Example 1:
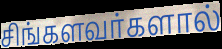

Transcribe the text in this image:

சிங்களவர்களால்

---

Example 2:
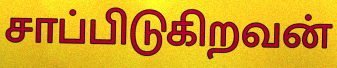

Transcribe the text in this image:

சாப்பிடுகிறவன்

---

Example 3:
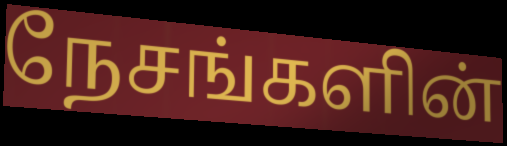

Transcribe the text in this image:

நேசங்களின்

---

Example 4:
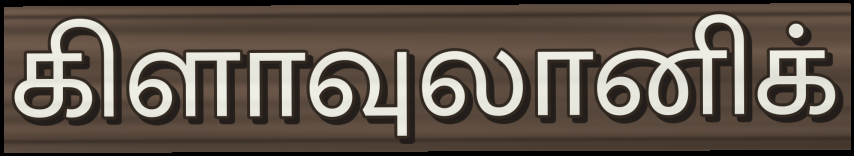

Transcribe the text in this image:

கிளாவுலானிக்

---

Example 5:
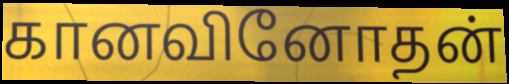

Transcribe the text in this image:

கானவினோதன்